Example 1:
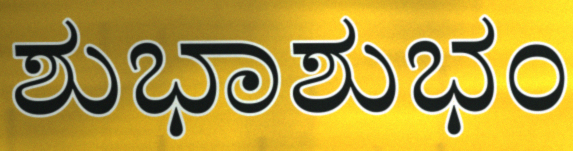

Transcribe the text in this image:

ಶುಭಾಶುಭಂ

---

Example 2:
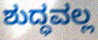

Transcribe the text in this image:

ಶುದ್ಧವಲ್ಲ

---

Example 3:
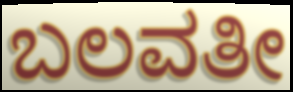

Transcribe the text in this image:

ಬಲವತೀ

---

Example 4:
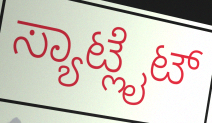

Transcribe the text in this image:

ಸ್ಯಾಟ್ಲೈಟ್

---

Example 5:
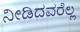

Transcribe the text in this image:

ನೀಡಿದವರೆಲ್ಲ